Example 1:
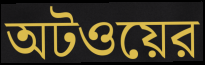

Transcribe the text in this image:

অটওয়ের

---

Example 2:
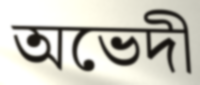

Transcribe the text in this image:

অভেদী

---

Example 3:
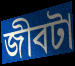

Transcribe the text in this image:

জীবটা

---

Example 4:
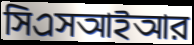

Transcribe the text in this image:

সিএসআইআর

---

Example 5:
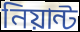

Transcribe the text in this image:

নিয়ান্ট